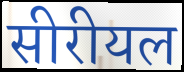
सीरीयल